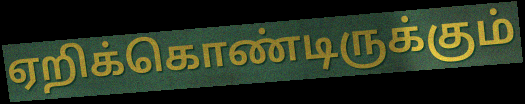
ஏறிக்கொண்டிருக்கும்